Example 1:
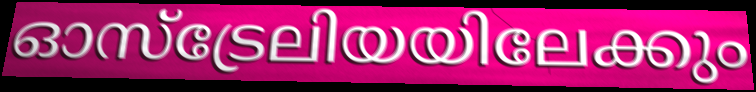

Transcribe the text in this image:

ഓസ്ട്രേലിയയിലേക്കും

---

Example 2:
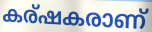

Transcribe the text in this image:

കര്ഷകരാണ്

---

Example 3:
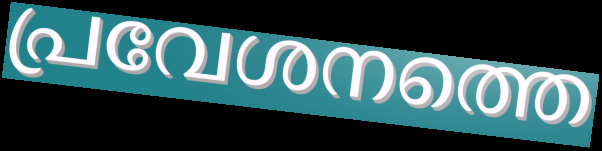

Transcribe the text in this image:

പ്രവേശനത്തെ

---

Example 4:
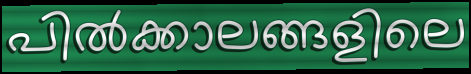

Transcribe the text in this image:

പിൽക്കാലങ്ങളിലെ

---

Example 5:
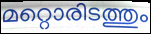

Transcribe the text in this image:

മറ്റൊരിടത്തും